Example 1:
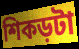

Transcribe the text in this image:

শিকড়টা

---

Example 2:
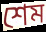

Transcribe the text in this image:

শেম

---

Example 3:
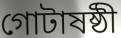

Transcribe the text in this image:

গোটাষষ্ঠী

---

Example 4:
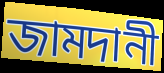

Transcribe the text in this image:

জামদানী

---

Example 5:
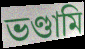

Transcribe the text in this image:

ভণ্ডামি